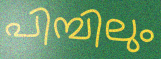
പിമ്പിലും